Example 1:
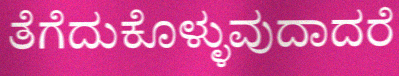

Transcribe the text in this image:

ತೆಗೆದುಕೊಳ್ಳುವುದಾದರೆ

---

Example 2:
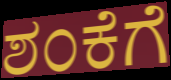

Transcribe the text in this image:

ಶಂಕೆಗೆ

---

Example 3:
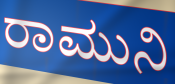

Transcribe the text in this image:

ರಾಮುನಿ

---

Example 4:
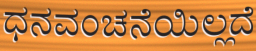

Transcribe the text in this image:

ಧನವಂಚನೆಯಿಲ್ಲದೆ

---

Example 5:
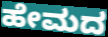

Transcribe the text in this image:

ಹೇಮದ